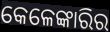
କେଳେଙ୍କାରିର